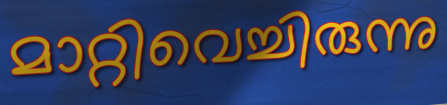
മാറ്റിവെച്ചിരുന്നു